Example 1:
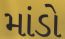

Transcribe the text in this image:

માંડો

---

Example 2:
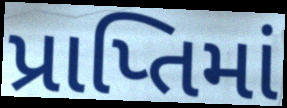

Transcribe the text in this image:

પ્રાપ્તિમાં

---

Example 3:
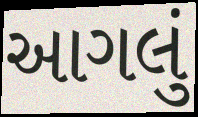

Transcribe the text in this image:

આગલું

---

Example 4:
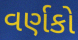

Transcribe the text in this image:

વર્ણકો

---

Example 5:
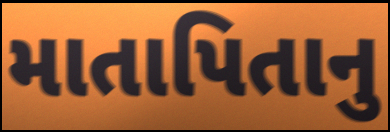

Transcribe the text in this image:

માતાપિતાનુ